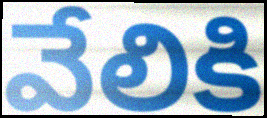
వేలికి